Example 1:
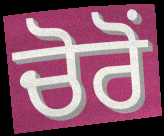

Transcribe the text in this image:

ਚੋਰੋਂ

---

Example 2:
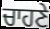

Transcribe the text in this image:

ਚਾਹਣੇ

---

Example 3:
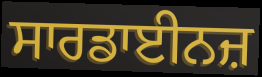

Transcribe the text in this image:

ਸਾਰਡਾਈਨਜ਼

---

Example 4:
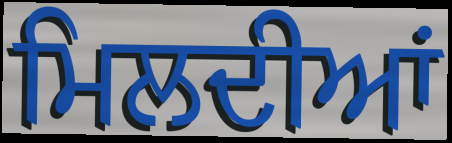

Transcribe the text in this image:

ਮਿਲਦੀਆਂ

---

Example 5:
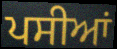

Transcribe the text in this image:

ਪਸੀਆਂ